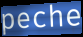
peche